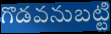
గొడవనుబట్టి